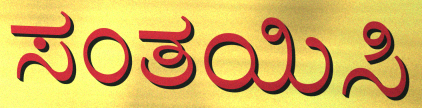
ಸಂತಯಿಸಿ